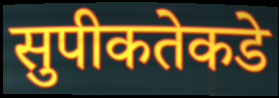
सुपीकतेकडे